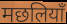
मछलियाँ